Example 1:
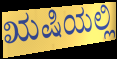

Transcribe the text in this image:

ಋಷಿಯಲ್ಲಿ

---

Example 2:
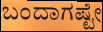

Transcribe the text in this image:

ಬಂದಾಗಷ್ಟೇ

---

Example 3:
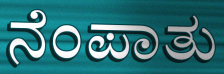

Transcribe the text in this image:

ನೆಂಪಾತು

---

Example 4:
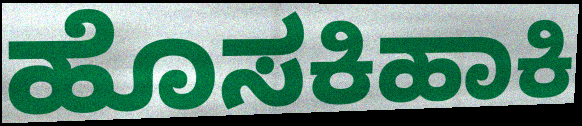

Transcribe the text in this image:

ಹೊಸಕಿಹಾಕಿ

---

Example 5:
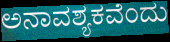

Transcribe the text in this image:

ಅನಾವಶ್ಯಕವೆಂದು